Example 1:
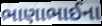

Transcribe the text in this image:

ભાણાભાઈના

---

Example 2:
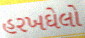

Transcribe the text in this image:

હરખઘેલો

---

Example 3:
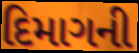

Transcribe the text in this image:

દિમાગની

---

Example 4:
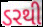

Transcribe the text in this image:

ડરથી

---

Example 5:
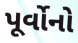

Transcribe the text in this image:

પૂર્વોનો